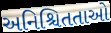
અનિશ્ચિતતાઓ